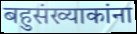
बहुसंख्याकांना